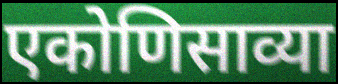
एकोणिसाव्या